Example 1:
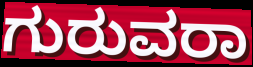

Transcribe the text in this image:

ಗುರುವರಾ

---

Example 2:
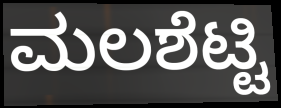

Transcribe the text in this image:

ಮಲಶೆಟ್ಟಿ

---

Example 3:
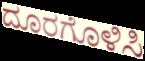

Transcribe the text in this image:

ದೂರಗೊಳಿಸಿ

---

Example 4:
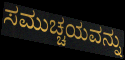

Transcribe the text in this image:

ಸಮುಚ್ಚಯವನ್ನು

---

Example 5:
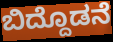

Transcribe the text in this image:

ಬಿದ್ದೊಡನೆ